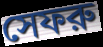
সেফরু